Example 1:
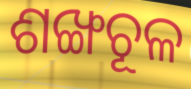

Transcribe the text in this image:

ଶଙ୍ଖଚୂଳ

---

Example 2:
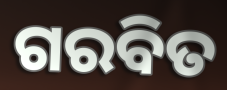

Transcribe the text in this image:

ଗରବିତ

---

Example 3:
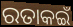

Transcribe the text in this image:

ରତାକଇଁ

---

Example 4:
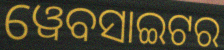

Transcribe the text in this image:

ୱେବସାଇଟର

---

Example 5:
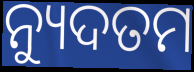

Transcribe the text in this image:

ନ୍ୟୁଦତମ